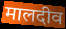
मालदीव